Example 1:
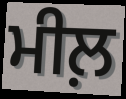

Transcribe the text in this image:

ਮੀਲ਼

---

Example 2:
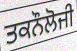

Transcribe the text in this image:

ਤਕਨੌਲੋਜੀ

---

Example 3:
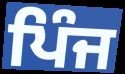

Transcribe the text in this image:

ਪਿੰਜ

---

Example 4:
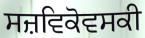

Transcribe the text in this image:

ਸਜ਼ਵਿਕੋਵਸਕੀ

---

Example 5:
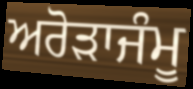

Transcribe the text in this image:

ਅਰੋੜਾਜੰਮੂ